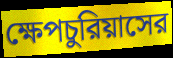
ক্ষেপচুরিয়াসের